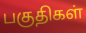
பகுதிகள்